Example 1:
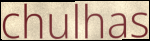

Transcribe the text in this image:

chulhas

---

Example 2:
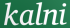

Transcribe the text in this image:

kalni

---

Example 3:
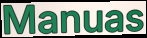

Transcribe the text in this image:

Manuas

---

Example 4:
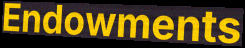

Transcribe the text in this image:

Endowments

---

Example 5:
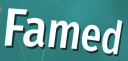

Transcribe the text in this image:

Famed